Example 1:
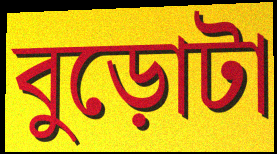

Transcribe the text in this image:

বুড়োটা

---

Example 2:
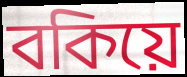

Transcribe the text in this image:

বকিয়ে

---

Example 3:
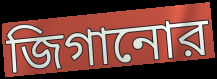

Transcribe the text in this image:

জিগানোর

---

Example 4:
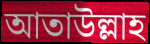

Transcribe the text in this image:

আতাউল্লাহ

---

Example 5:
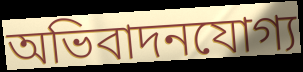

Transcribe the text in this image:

অভিবাদনযোগ্য